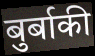
बुर्बाकी